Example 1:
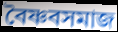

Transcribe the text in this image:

বৈষ্ণবসমাজ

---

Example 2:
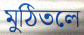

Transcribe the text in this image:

মুঠিতলে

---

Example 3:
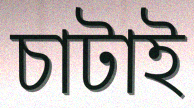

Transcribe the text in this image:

চাটাই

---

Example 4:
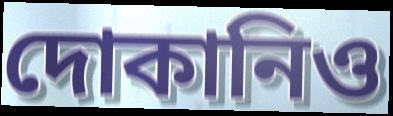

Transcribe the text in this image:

দোকানিও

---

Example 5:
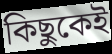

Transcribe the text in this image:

কিছুকেই